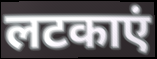
लटकाएं